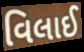
વિલાઈ